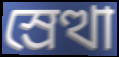
স্রেত্থা